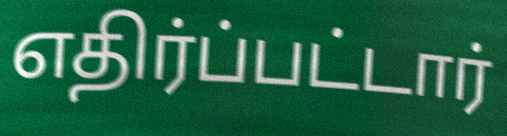
எதிர்ப்பட்டார்